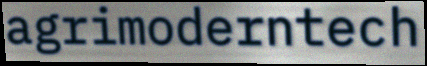
agrimoderntech